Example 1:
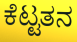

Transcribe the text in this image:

ಕೆಟ್ಟತನ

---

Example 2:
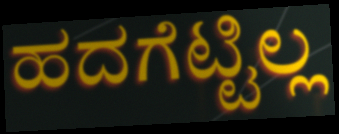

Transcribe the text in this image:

ಹದಗೆಟ್ಟಿಲ್ಲ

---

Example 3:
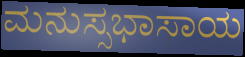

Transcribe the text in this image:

ಮನುಸ್ಸಭಾಸಾಯ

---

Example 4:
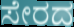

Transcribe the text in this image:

ಸೇರದ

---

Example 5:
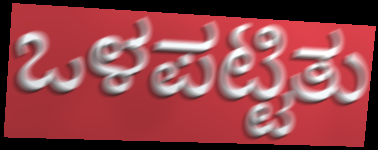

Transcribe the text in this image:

ಒಳಪಟ್ಟಿತು